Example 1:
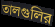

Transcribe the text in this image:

তালগুলির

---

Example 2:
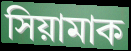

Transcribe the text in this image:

সিয়ামাক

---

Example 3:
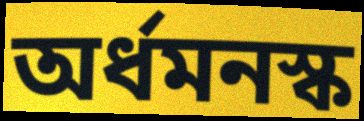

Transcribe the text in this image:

অর্ধমনস্ক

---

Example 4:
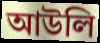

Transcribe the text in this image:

আউলি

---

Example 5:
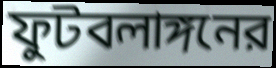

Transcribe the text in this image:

ফুটবলাঙ্গনের